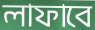
লাফাবে